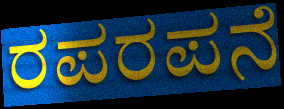
ರಪರಪನೆ